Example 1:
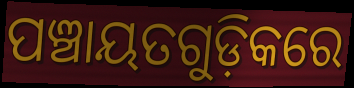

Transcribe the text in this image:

ପଞ୍ଚାୟତଗୁଡ଼ିକରେ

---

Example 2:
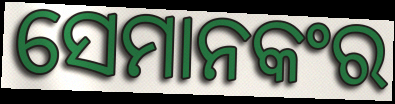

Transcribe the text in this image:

ସେମାନକଂର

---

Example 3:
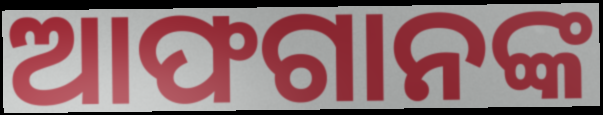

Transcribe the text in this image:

ଆଫଗାନଙ୍କ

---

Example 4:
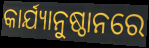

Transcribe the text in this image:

କାର୍ଯ୍ୟାନୁଷ୍ଠାନରେ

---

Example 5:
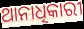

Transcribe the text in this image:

ଥାନାଧିକାରୀ